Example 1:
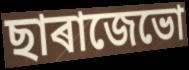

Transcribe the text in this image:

ছাৰাজেভো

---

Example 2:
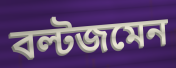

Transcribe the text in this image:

বল্টজমেন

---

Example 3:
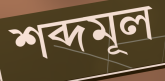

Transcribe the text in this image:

শব্দমূল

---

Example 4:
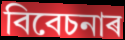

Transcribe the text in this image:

বিবেচনাৰ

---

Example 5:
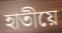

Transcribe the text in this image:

হাতীয়ে